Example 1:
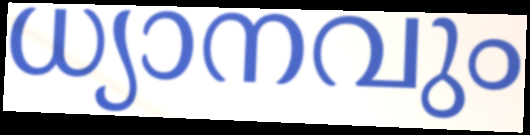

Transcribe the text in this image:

ധ്യാനവും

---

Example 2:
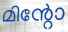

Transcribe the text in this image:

മിന്റോ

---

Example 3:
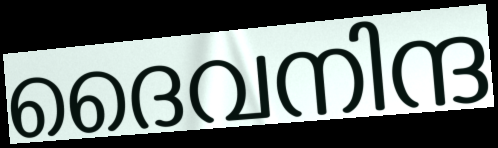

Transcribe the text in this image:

ദൈവനിന്ദ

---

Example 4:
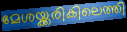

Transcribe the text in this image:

മേശയ്ക്കരികിലെത്തി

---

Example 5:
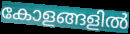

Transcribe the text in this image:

കോളങ്ങളിൽ